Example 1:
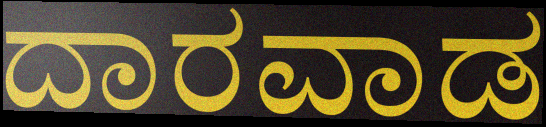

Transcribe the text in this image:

ದಾರವಾಡ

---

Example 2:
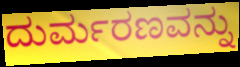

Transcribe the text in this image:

ದುರ್ಮರಣವನ್ನು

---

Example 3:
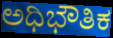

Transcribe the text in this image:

ಅಧಿಭೌತಿಕ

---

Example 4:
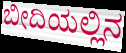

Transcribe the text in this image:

ಬೀದಿಯಲ್ಲಿನ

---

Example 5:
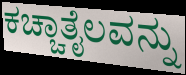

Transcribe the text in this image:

ಕಚ್ಚಾತೈಲವನ್ನು